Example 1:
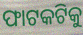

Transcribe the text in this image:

ଫାଟକଟିକୁ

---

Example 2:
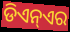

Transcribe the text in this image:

ଡିଏନ୍ଏର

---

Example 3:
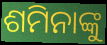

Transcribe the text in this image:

ଶମିନାଙ୍କୁ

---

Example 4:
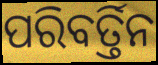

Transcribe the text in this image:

ପରିବର୍ତ୍ତିନ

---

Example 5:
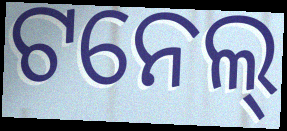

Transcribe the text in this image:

ଟନେଲ୍